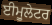
ਈਮੂਲੇਟਰ